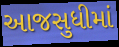
આજસુધીમાં